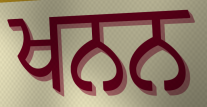
ਖਨਨ